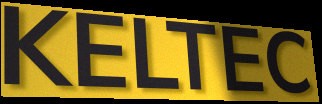
KELTEC